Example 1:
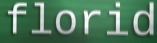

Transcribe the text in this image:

florid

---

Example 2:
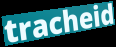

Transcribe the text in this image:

tracheid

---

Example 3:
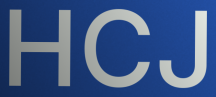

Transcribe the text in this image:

HCJ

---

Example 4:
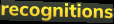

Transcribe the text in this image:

recognitions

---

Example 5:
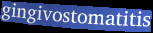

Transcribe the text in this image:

gingivostomatitis